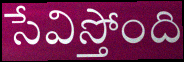
సేవిస్తోంది